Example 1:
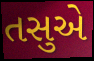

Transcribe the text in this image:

તસુએ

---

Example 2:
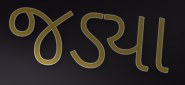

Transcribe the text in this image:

જડ્યા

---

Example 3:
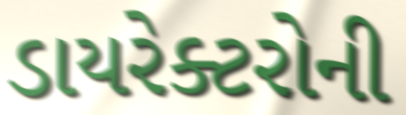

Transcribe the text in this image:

ડાયરેક્ટરોની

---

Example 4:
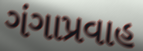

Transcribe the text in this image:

ગંગાપ્રવાહ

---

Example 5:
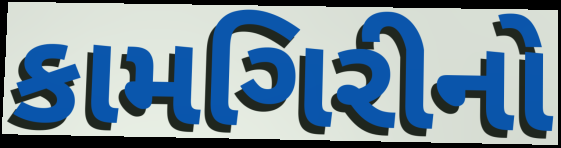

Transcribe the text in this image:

કામગિરીનો